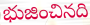
భుజించినది